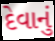
દેવાનું